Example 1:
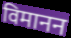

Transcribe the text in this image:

विमानन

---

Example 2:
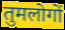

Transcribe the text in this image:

तुमलोगों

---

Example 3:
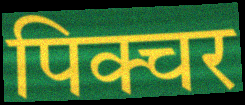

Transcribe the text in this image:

पिक्चर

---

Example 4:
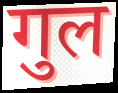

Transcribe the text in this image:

गुल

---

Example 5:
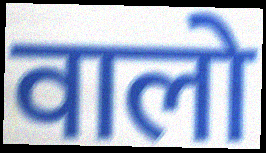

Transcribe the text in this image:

वालो